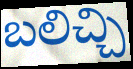
బలిచ్చి